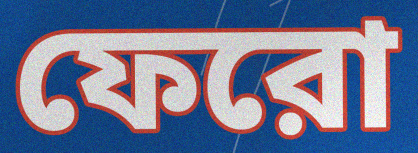
ফেরো